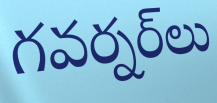
గవర్నర్‌లు